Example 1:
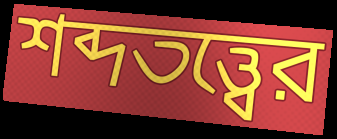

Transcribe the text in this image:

শব্দতত্ত্বের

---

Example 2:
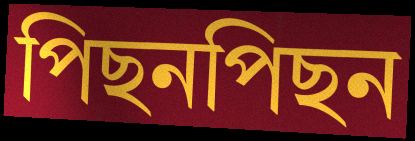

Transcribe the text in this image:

পিছনপিছন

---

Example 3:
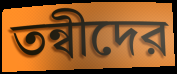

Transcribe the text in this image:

তন্বীদের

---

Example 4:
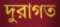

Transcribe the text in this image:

দুরাগত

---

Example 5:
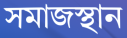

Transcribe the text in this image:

সমাজস্থান